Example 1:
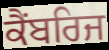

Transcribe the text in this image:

ਕੈਂਬਰਿਜ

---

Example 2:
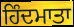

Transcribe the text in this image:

ਹਿੰਦਮਾਤਾ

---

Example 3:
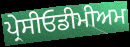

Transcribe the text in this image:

ਪ੍ਰੇਸੀਓਡੀਮੀਅਮ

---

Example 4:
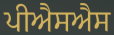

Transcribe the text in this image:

ਪੀਐਸਐਸ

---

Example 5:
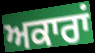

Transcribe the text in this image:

ਅਕਾਰਾਂ